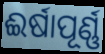
ଈର୍ଷାପୂର୍ଣ୍ଣ